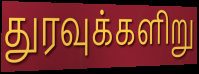
துரவுக்களிறு